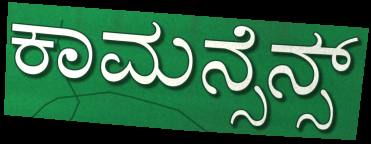
ಕಾಮನ್ಸೆನ್ಸ್